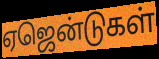
ஏஜென்டுகள்